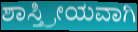
ಶಾಸ್ತ್ರೀಯವಾಗಿ